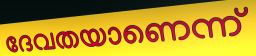
ദേവതയാണെന്ന്